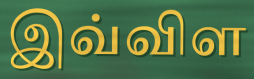
இவ்விள